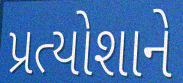
પ્રત્યોશાને